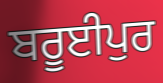
ਬਰੂਈਪੁਰ